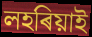
লহৰিয়াই